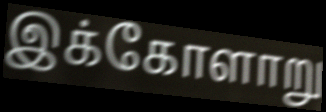
இக்கோளாறு